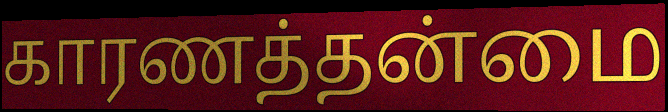
காரணத்தன்மை